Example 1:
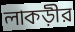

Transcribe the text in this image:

লাকড়ীর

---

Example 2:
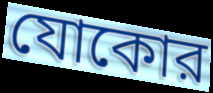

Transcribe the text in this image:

যোকোর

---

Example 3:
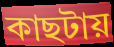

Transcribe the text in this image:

কাছটায়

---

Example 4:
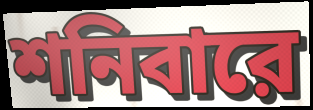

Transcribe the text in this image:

শনিবারে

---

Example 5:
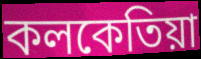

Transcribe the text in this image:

কলকেতিয়া